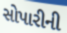
સોપારીની